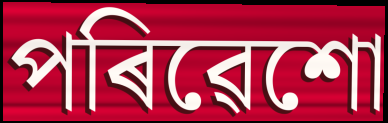
পৰিৱেশো